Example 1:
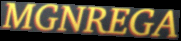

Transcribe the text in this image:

MGNREGA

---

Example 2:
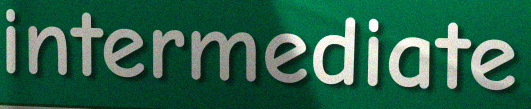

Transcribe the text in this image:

intermediate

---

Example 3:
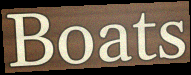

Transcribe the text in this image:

Boats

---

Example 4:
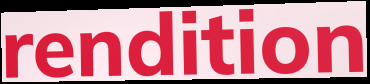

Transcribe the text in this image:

rendition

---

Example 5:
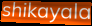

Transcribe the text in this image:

shikayala